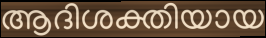
ആദിശക്തിയായ